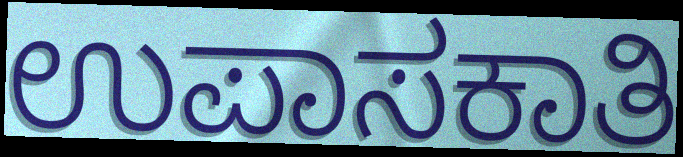
ಉಪಾಸಕಾತಿ